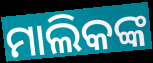
ମାଲିକଙ୍କ